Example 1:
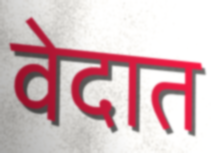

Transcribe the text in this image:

वेदात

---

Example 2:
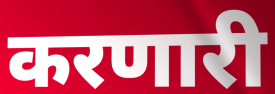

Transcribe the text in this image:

करणारी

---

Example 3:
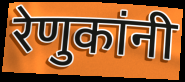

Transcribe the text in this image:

रेणुकांनी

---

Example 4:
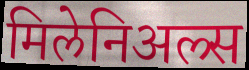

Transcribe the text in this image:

मिलेनिअल्स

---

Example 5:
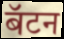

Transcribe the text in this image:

बॅटन